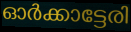
ഓർക്കാട്ടേരി